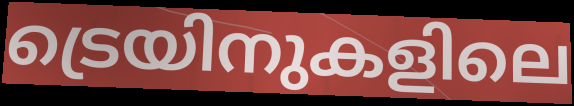
ട്രെയിനുകളിലെ